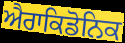
ਐਰਾਕਿਡੋਨਿਕ